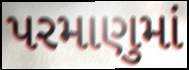
પરમાણુમાં